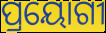
ପ୍ରୟୋଗୀ